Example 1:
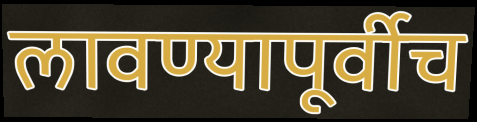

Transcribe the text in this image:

लावण्यापूर्वीच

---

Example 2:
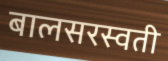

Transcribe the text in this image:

बालसरस्वती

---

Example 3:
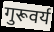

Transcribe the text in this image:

गुरूवर्य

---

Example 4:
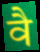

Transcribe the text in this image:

वै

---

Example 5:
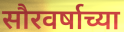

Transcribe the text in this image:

सौरवर्षाच्या